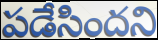
పడేసిందని